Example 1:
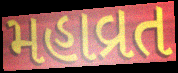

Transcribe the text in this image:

મહાવ્રત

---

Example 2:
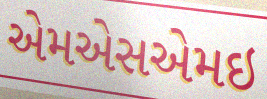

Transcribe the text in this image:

એમએસએમઇ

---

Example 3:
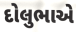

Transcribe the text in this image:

દોલુભાએ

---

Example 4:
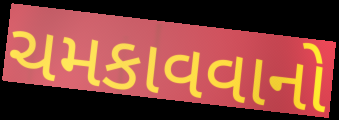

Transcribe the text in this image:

ચમકાવવાનો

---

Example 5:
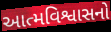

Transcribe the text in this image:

આત્મવિશ્વાસનો